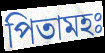
পিতামহঃ